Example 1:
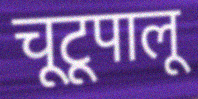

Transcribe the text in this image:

चूटूपालू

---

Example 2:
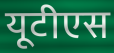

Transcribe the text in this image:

यूटीएस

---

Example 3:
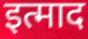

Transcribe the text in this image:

इत्माद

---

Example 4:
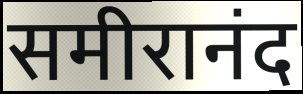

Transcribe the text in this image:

समीरानंद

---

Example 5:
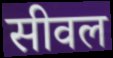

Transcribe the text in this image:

सीवल